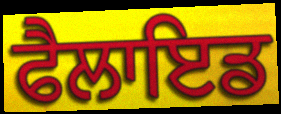
ਫੈਲਾਇਡ